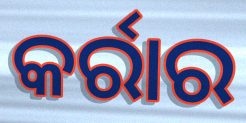
କର୍ରାର